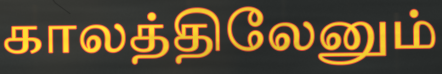
காலத்திலேனும்